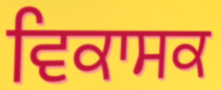
ਵਿਕਾਸਕ